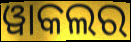
ୱାକଲର